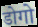
डोगो